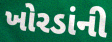
ખોરડાંની